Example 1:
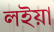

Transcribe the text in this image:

লইয়া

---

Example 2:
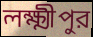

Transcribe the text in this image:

লক্ষ্মীপুর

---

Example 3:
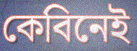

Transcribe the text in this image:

কেবিনেই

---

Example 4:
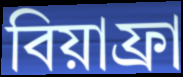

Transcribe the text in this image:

বিয়াফ্রা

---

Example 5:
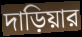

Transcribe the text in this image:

দাড়িয়ার